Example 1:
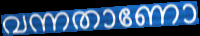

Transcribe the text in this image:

വന്നതാണോ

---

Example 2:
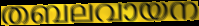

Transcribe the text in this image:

തബലവായന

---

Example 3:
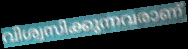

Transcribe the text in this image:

വിശ്വസിക്കുന്നവരാണ്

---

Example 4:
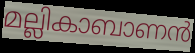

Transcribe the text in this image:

മല്ലികാബാണൻ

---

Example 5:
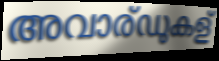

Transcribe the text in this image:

അവാര്ഡുകള്